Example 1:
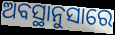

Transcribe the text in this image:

ଅବସ୍ଥାନୁସାରେ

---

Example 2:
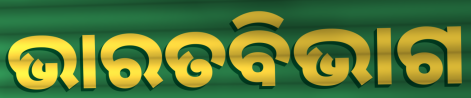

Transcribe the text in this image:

ଭାରତବିଭାଗ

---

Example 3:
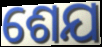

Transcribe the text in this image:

ଶେଯ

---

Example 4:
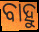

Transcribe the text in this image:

ବାହୁ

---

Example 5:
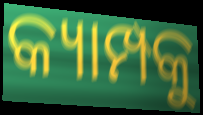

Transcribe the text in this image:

କ୍ୟାମ୍ପକୁ